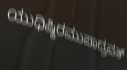
ಯುಧಿಷ್ಠಿರಮುಪಾದ್ರವತ್